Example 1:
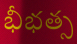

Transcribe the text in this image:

భీభత్స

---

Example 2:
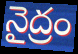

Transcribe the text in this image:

నైద్రం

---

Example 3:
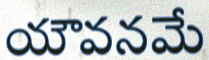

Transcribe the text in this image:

యౌవనమే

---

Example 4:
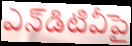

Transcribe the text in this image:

ఎన్‌డిటివీపై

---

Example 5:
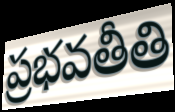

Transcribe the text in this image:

ప్రభవతీతి